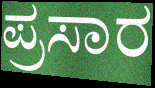
ಪ್ರಸಾರ